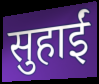
सुहाईं